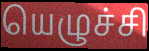
யெழுச்சி